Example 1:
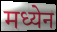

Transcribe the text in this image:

मध्येन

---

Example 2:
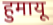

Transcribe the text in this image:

हुमायू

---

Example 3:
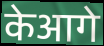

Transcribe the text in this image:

केआगे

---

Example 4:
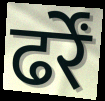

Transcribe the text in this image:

ढर्रें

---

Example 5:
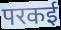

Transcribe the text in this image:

परकई